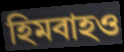
হিমবাহও